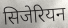
सिजेरियन